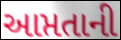
આપ્તતાની